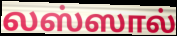
லஸ்ஸால்